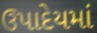
ઉપાદેયમાં